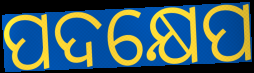
ପଦକ୍ଷେପ